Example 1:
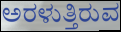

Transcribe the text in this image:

ಅರಳುತ್ತಿರುವ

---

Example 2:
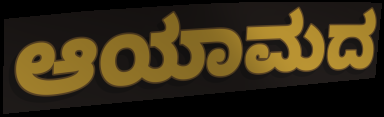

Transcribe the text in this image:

ಆಯಾಮದ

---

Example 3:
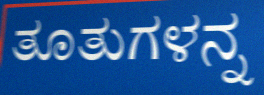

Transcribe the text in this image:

ತೂತುಗಳನ್ನ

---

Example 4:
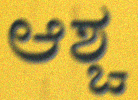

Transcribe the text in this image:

ಆಶ್ಚ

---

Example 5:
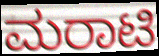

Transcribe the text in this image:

ಮರಾಟಿ